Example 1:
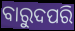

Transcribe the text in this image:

ବାରୁଦପରି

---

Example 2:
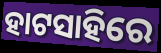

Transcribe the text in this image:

ହାଟସାହିରେ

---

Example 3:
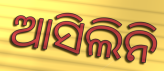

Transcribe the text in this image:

ଆସିଲିନି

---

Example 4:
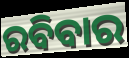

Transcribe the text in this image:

ରବିବାର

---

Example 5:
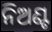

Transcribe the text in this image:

ନିଅଣ୍ଟ